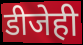
डीजेही